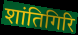
शांतिगिरि